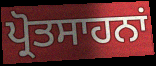
ਪ੍ਰੋਤਸਾਹਨਾਂ